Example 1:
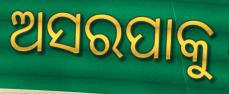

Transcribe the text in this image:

ଅସରପାକୁ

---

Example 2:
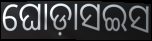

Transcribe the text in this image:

ଘୋଡ଼ାସଇସ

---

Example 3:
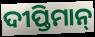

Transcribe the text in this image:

ଦୀପ୍ତିମାନ୍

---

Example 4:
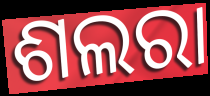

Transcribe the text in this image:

ଶଲରା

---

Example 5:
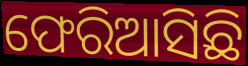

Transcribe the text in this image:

ଫେରିଆସିଛି